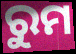
ରୁମ